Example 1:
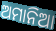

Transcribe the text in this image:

ଅମାନିଆ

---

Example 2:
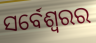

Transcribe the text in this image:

ସର୍ବେଶ୍ୱରର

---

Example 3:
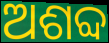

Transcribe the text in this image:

ଅଶବ୍ଦ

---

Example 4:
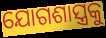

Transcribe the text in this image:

ଯୋଗଶାସ୍ତ୍ରକୁ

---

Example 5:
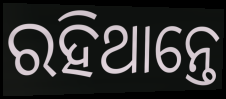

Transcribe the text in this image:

ରହିଥାନ୍ତେ